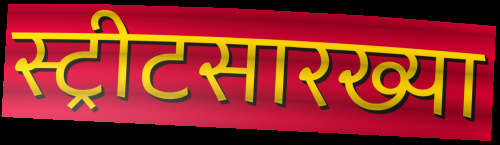
स्ट्रीटसारख्या